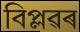
বিপ্লৱৰ